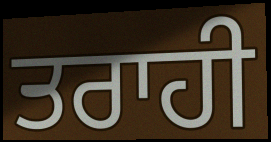
ਤਰਾਹੀ